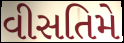
વીસતિમે